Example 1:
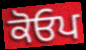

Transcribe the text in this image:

ਕੋਓਪ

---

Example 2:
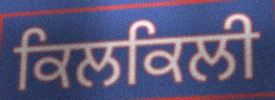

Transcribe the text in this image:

ਕਿਲਕਿਲੀ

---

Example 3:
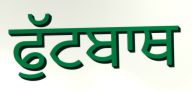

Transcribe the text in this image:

ਫੁੱਟਬਾਥ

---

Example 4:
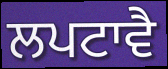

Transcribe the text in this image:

ਲਪਟਾਵੈ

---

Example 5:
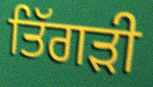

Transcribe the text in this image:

ਤਿੱਗੜੀ